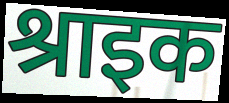
श्राइक